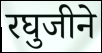
रघुजीने